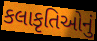
કલાકૃતિઓનું